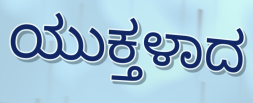
ಯುಕ್ತಳಾದ